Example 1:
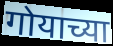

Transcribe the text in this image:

गोयाच्या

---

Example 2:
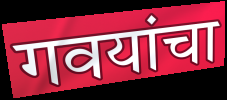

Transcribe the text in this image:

गवयांचा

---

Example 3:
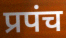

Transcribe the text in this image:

प्रपंच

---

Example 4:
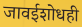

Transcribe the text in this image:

जावईशोधही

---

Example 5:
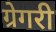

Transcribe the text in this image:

ग्रेगरी